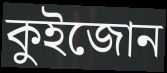
কুইজোন